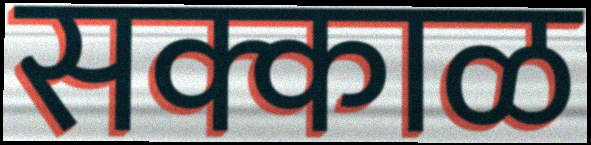
सक्काळ